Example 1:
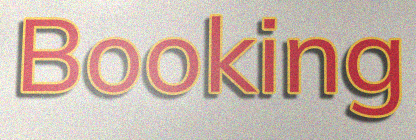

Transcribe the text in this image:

Booking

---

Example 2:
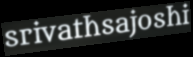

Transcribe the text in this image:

srivathsajoshi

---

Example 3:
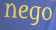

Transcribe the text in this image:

nego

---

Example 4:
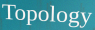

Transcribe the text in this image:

Topology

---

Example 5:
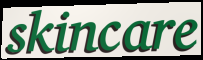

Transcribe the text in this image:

skincare